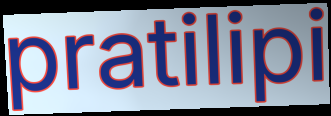
pratilipi